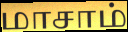
மாசாம்